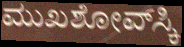
ಮುಖಶೋವ್‌ಸ್ಕಿ